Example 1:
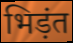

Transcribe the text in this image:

भिड़ंत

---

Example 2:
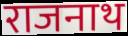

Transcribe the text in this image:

राजनाथ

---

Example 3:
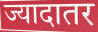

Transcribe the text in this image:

ज्यादातर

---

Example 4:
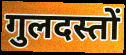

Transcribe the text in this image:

गुलदस्तों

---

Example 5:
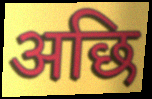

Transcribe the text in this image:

अछि